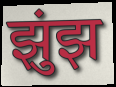
झुंझ